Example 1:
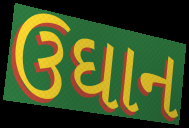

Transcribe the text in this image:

ઉઘાન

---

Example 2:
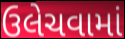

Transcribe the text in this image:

ઉલેચવામાં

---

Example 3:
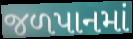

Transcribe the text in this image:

જળપાનમાં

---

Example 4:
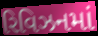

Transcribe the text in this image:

રિવિઝનમાં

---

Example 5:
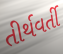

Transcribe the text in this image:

તીર્થવર્તી